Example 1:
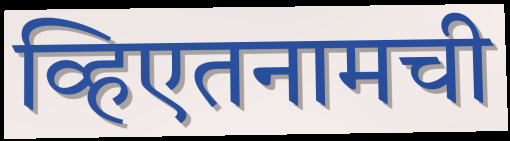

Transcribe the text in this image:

व्हिएतनामची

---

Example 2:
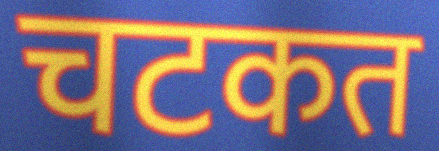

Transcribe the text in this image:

चटकत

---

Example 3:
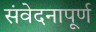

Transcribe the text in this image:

संवेदनापूर्ण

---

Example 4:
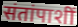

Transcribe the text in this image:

संतांपाशीं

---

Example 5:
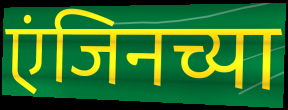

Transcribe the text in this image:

एंजिनच्या